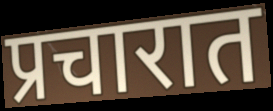
प्रचारात